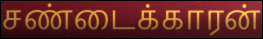
சண்டைக்காரன்